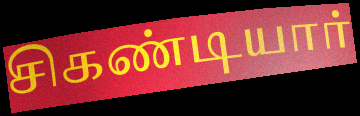
சிகண்டியார்